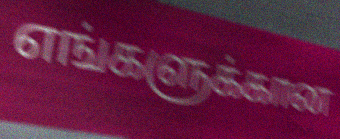
எங்களுக்கான